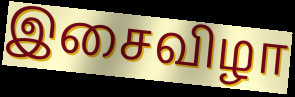
இசைவிழா